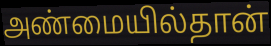
அண்மையில்தான்